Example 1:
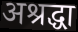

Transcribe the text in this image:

अश्रद्धा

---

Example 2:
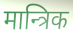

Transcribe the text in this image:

मान्त्रिक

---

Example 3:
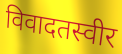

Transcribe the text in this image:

विवादतस्वीर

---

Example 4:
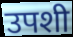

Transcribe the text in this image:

उपशी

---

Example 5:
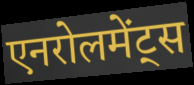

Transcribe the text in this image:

एनरोलमेंट्स